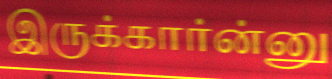
இருக்கார்ன்னு